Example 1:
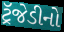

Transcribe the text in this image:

ટ્રૅજેડીનો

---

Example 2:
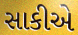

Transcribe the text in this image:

સાકીએ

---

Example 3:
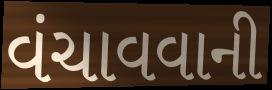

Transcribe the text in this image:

વંચાવવાની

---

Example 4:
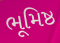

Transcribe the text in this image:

ભૂમિષ્ઠ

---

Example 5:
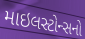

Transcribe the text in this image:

માઇલસ્ટોન્સનો